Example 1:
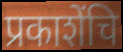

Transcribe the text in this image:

प्रकाशेंचि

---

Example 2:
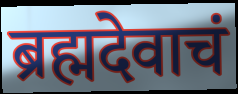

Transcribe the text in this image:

ब्रह्मदेवाचं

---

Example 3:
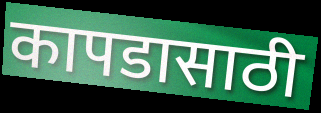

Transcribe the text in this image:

कापडासाठी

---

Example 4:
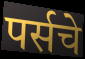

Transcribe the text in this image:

पर्सचे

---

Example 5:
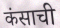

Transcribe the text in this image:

कंसाची